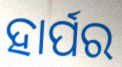
ହାର୍ପର